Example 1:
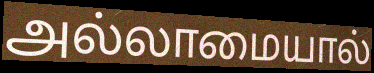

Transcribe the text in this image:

அல்லாமையால்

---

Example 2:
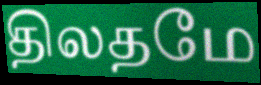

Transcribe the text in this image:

திலதமே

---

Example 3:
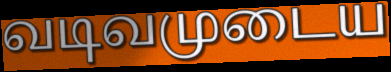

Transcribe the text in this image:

வடிவமுடைய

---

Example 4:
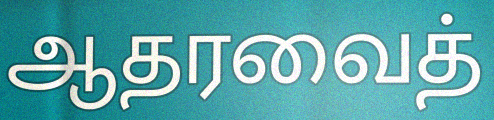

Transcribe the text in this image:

ஆதரவைத்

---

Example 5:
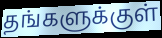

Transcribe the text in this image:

தங்களுக்குள்